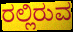
ರಲ್ಲಿರುವ